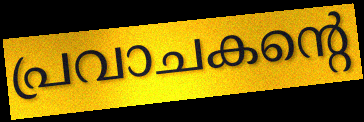
പ്രവാചകന്റെ